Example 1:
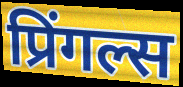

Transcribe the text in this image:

प्रिंगल्स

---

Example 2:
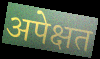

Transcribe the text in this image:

अपेक्षत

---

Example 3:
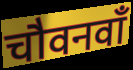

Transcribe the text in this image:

चौवनवाँ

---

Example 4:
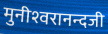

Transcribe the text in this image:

मुनीश्वरानन्दजी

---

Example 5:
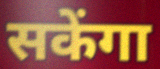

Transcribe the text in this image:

सकेंगा